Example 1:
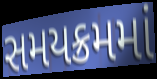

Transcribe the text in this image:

સમયક્રમમાં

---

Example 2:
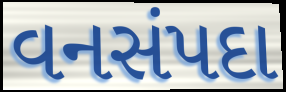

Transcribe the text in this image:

વનસંપદા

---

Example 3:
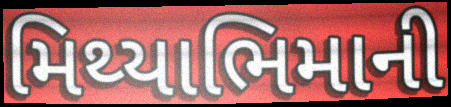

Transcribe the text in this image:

મિથ્યાભિમાની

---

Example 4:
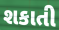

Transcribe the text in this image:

શકાતી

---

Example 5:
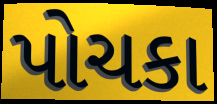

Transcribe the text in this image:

પોચકા